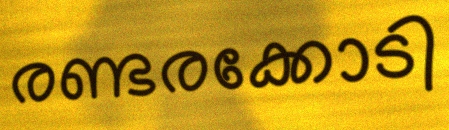
രണ്ടരക്കോടി